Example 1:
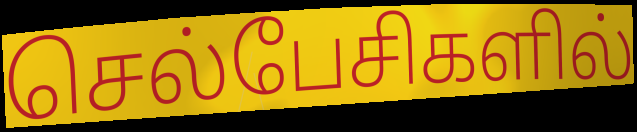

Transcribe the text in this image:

செல்பேசிகளில்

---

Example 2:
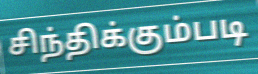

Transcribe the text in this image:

சிந்திக்கும்படி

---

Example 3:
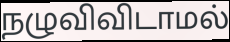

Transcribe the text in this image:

நழுவிவிடாமல்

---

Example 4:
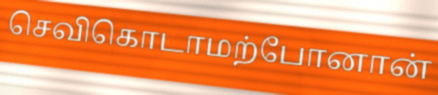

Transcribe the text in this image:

செவிகொடாமற்போனான்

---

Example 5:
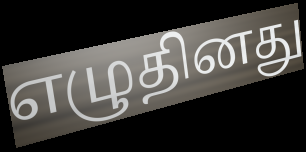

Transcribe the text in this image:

எழுதினது